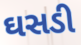
ઘસડી